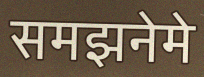
समझनेमे